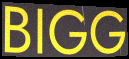
BIGG